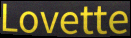
Lovette